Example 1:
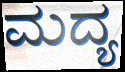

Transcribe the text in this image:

ಮದ್ಯ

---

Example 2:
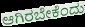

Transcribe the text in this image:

ಆಗಿರಬೇಕೆಂದು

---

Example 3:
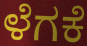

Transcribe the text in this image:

ಳೆಗಕೆ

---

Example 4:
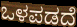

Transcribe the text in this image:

ಒಳಪಡದೆ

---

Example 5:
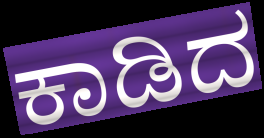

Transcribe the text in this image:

ಕಾಡಿದ